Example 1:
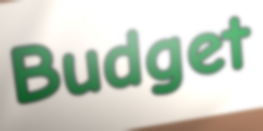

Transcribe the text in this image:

Budget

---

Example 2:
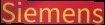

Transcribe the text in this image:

Siemens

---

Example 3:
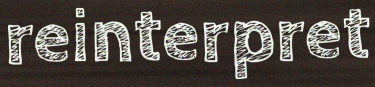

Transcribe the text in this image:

reinterpret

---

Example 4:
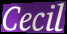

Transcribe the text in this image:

Cecil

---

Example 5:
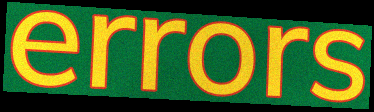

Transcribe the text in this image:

errors